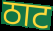
ठाट